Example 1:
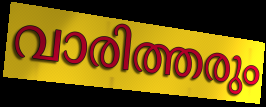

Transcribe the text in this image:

വാരിത്തരും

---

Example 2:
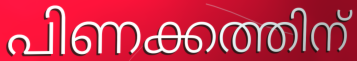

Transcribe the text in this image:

പിണക്കത്തിന്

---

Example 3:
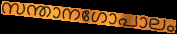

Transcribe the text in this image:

സന്താനഗോപാലം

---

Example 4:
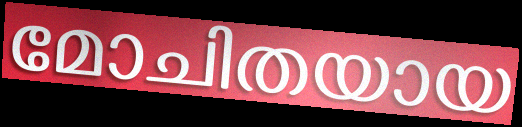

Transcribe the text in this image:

മോചിതയായ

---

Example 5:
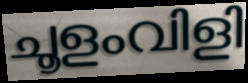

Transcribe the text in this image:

ചൂളംവിളി